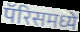
पॅरिसमध्ये